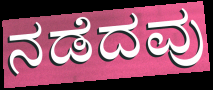
ನಡೆದವು